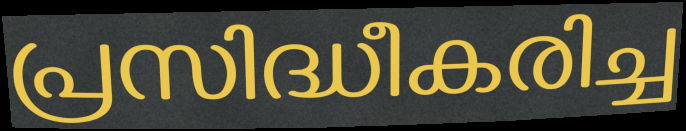
പ്രസിദ്ധീകരിച്ച